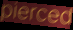
pierced